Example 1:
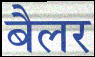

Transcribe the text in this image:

बैलर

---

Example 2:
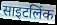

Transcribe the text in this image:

साइटलिंक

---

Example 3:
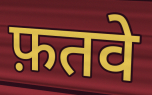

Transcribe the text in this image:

फ़तवे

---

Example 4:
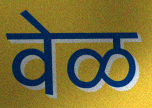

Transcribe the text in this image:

वेळ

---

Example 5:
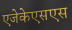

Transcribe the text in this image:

एजेकेएसएस